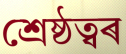
শ্ৰেষ্ঠত্বৰ